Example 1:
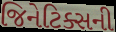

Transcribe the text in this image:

જિનેટિક્સની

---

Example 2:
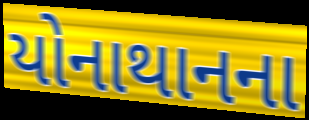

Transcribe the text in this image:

યોનાથાનના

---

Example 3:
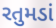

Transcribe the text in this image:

રતુમડાં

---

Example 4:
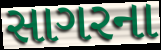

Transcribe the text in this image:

સાગરના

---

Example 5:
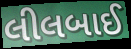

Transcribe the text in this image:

લીલબાઈ